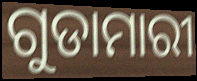
ଗୁଡାମାରୀ